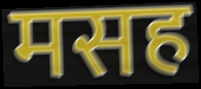
मसह